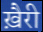
ख़ैरी